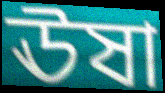
ঊষা